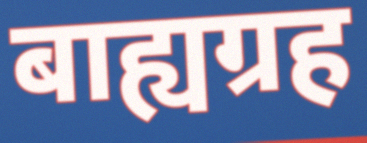
बाह्यग्रह